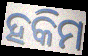
ହକିମ